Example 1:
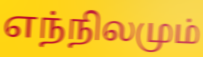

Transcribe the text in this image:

எந்நிலமும்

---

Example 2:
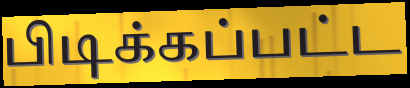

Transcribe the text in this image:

பிடிக்கப்பட்ட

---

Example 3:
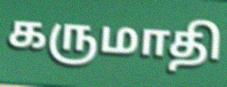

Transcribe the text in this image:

கருமாதி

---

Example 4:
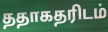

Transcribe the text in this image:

ததாகதரிடம்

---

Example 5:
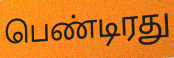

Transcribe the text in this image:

பெண்டிரது